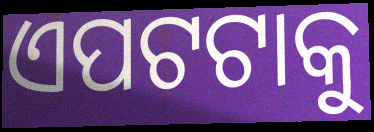
ଏପଟଟାକୁ